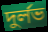
দুৰ্লভ